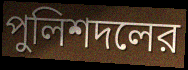
পুলিশদলের